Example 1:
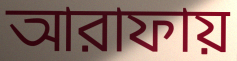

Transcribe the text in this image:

আরাফায়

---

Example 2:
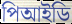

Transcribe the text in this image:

পিআইডি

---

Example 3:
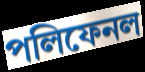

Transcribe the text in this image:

পলিফেনল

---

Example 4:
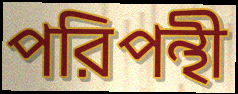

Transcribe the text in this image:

পরিপন্থী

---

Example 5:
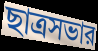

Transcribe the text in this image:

ছাত্রসভার